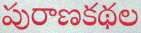
పురాణకథల